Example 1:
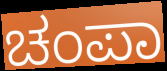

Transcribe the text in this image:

ಚಂಪಾ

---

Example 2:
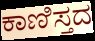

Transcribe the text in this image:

ಕಾಣಿಸ್ತದ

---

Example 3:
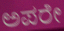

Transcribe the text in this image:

ಅಪರೇ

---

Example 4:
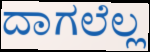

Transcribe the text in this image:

ದಾಗಲೆಲ್ಲ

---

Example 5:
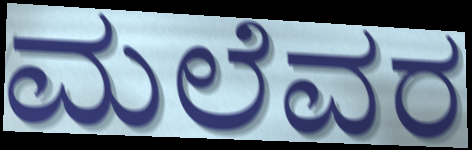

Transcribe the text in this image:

ಮಲೆವರ